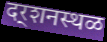
दर्शनस्थळ